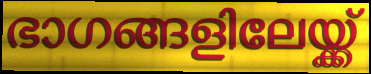
ഭാഗങ്ങളിലേയ്ക്ക്